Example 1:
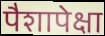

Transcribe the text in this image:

पैशापेक्षा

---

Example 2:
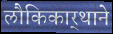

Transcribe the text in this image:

लौकिकार्थाने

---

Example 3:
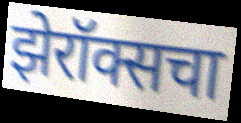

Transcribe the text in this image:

झेरॉक्सचा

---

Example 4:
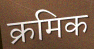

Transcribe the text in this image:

क्रमिक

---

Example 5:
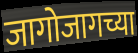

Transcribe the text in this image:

जागोजागच्या